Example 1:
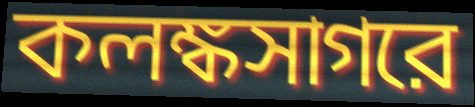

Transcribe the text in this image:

কলঙ্কসাগরে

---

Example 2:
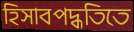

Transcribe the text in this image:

হিসাবপদ্ধতিতে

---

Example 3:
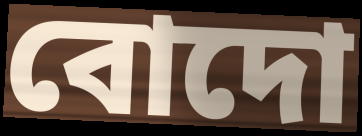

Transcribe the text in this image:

বোদো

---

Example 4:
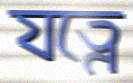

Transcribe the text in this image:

যত্নে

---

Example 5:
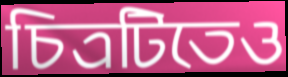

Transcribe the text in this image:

চিত্রটিতেও